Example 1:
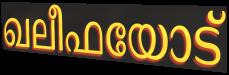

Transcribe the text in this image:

ഖലീഫയോട്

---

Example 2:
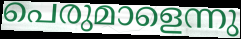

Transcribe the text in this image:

പെരുമാളെന്നു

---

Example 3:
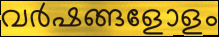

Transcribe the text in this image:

വർഷങ്ങളോളം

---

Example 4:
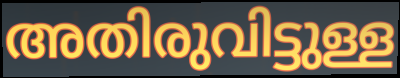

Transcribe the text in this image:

അതിരുവിട്ടുള്ള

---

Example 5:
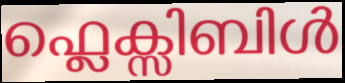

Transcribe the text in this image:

ഫ്ലെക്സിബിൾ